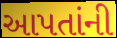
આપતાંની